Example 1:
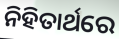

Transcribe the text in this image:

ନିହିତାର୍ଥରେ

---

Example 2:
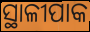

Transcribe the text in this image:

ସ୍ଥାଳୀପାକ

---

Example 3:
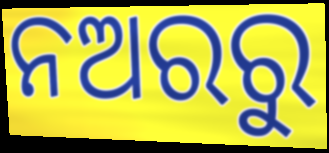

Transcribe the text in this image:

ନଅରରୁ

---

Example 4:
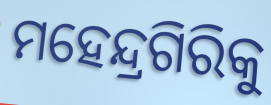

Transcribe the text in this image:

ମହେନ୍ଦ୍ରଗିରିକୁ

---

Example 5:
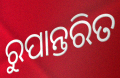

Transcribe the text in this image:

ରୁପାନ୍ତରିତ